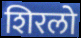
शिरलो